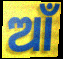
ଆଁ